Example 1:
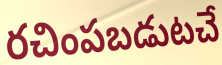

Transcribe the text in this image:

రచింపబడుటచే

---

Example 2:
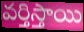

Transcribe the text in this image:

వర్తిస్తాయి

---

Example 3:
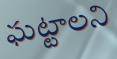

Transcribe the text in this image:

ఘట్టాలని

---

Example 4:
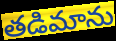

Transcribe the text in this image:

తడిమాను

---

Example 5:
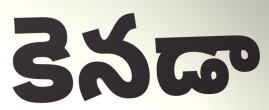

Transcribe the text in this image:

కెనడా